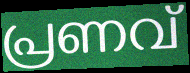
പ്രണവ്